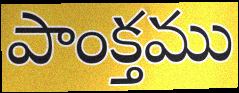
పాంక్తము